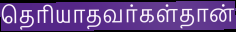
தெரியாதவர்கள்தான்